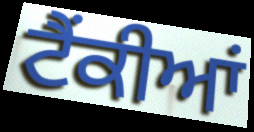
ਟੈਂਕੀਆਂ